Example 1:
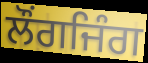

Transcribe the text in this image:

ਲੌਂਗਜਿੰਗ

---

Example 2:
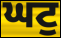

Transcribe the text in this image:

ਘਟੁ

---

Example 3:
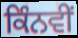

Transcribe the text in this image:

ਕਿੰਨਵੀਂ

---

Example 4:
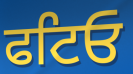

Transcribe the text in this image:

ਫਟਿਓ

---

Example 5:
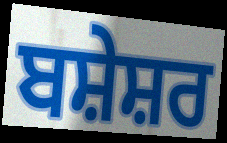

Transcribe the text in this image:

ਬਸ਼ੇਸ਼ਰ